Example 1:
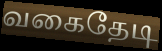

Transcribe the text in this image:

வகைதேடி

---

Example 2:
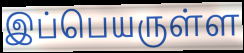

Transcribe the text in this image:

இப்பெயருள்ள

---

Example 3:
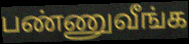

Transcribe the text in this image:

பண்ணுவீங்க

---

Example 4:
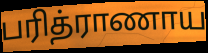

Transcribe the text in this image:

பரித்ராணாய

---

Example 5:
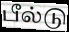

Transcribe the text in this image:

பீல்டு